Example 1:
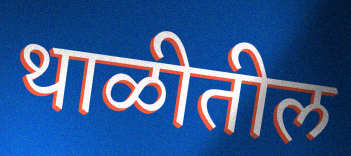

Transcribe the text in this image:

थाळीतील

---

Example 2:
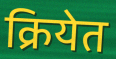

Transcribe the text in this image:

क्रियेत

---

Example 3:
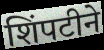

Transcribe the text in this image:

शिंपटीने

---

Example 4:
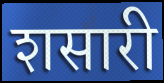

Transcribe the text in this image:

शसारी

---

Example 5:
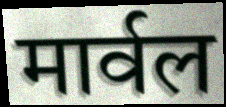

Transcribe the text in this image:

मार्वल